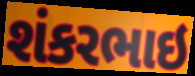
શંકરભાઇ